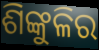
ଶିଙ୍କୁଳିର